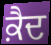
ਕ਼ੈਦ